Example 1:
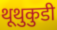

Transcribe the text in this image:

थूथुकुडी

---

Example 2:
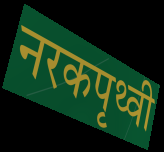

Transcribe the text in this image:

नरकपृथ्वी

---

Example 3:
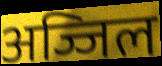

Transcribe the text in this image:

अज्जिल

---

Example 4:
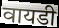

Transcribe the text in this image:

वायडी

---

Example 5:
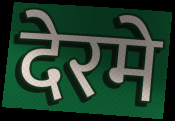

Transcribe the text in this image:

देरमे